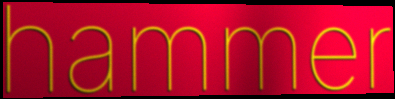
hammer